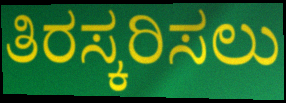
ತಿರಸ್ಕರಿಸಲು